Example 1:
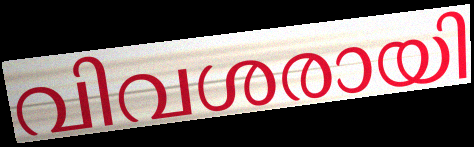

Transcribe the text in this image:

വിവശരായി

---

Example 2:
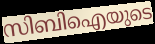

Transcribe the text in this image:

സിബിഐയുടെ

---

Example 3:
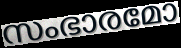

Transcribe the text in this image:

സംഭാരമോ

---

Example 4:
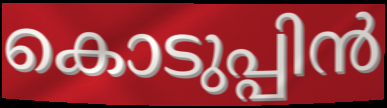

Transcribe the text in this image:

കൊടുപ്പിൻ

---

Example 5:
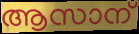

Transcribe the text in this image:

ആസാന്